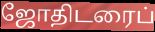
ஜோதிடரைப்